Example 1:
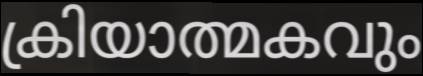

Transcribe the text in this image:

ക്രിയാത്മകവും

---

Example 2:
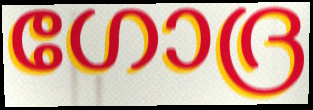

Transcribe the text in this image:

ഗോദ്ര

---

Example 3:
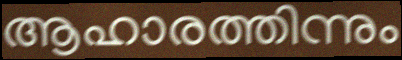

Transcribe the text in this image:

ആഹാരത്തിന്നും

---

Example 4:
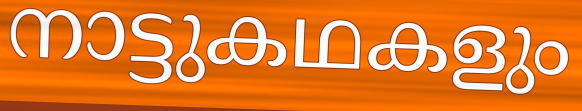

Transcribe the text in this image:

നാട്ടുകഥകളും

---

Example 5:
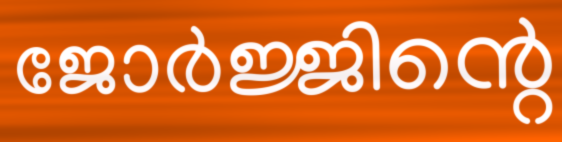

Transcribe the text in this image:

ജോർജ്ജിന്റെ